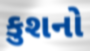
કુશનો